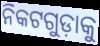
ନିକଟଗୁଡ଼ାକୁ